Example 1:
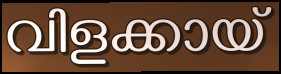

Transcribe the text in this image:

വിളക്കായ്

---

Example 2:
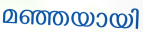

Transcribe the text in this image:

മഞ്ഞയായി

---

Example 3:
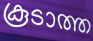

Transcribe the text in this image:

കൂടാത്ത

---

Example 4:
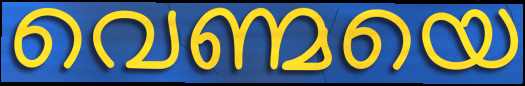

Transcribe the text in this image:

വെണ്മയെ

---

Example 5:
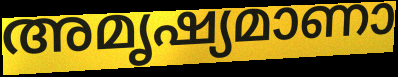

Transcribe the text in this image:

അമൃഷ്യമാണാ